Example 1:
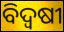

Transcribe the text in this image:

ବିଦ୍ୱଷୀ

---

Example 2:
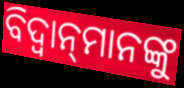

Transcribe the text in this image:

ବିଦ୍ଵାନ୍‌ମାନଙ୍କୁ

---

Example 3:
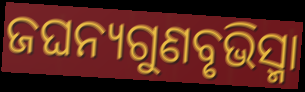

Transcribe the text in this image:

ଜଘନ୍ୟଗୁଣବୃଭିସ୍ମା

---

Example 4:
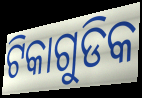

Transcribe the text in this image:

ଟିକାଗୁଡିକ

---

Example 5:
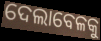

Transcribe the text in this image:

ଦେଲାବେଳକୁ